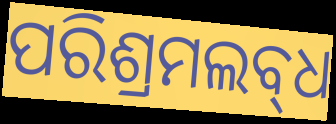
ପରିଶ୍ରମଲବ୍‍ଧ